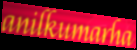
anilkumarha